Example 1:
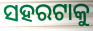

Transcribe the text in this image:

ସହରଟାକୁ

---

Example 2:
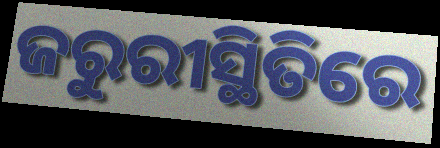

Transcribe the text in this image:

ଜରୁରୀସ୍ଥିତିରେ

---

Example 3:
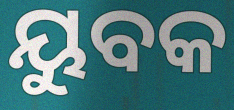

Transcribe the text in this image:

ୟୁବକ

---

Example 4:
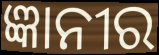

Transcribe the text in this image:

ଜ୍ଞାନୀର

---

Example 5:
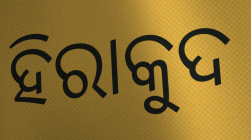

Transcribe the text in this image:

ହିରାକୁଦ